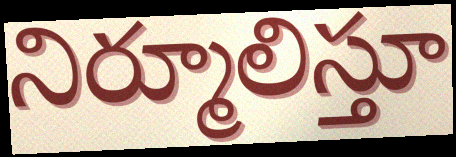
నిర్మూలిస్తూ